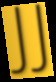
JJ